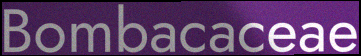
Bombacaceae